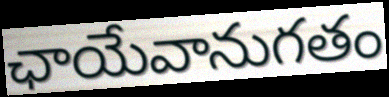
ఛాయేవానుగతం